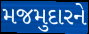
મજમુદારને